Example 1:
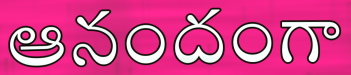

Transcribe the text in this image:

ఆనందంగా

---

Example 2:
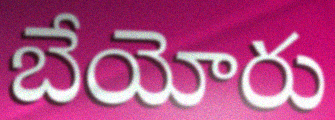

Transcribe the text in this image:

బేయోరు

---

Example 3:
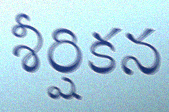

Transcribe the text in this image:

శీర్షికన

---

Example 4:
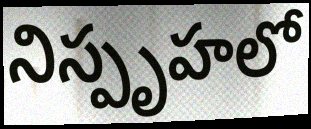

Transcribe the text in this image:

నిస్పృహలో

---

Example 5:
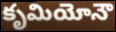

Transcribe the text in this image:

కృమియోనౌ